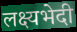
लक्ष्यभेदी